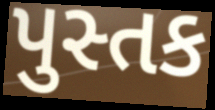
પુસ્તક